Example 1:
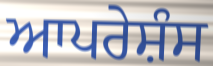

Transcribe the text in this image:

ਆਪਰੇਸ਼ੰਸ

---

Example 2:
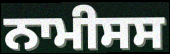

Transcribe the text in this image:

ਨਾਮੀਸਸ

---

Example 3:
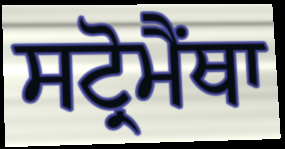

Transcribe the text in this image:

ਸਟ੍ਰੋਮੈਂਥਾ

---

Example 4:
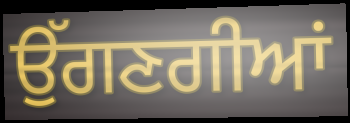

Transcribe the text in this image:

ਉੱਗਣਗੀਆਂ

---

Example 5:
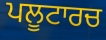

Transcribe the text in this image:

ਪਲੂਟਾਰਚ